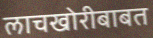
लाचखोरीबाबत